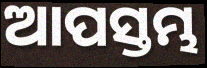
ଆପସ୍ତମ୍ଭ